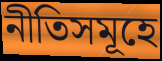
নীতিসমূহে